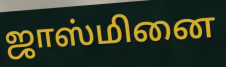
ஜாஸ்மினை